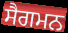
ਸੈਗਮਨ